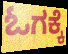
ಓಗಕ್ಕೆ